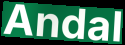
Andal